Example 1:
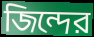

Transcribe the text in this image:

জিন্দের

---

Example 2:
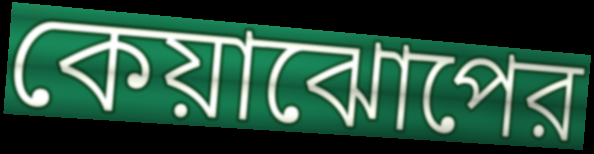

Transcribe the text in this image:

কেয়াঝোপের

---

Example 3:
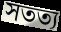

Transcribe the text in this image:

সতত্য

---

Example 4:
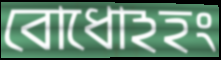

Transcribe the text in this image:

বোধোঽহং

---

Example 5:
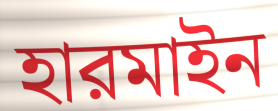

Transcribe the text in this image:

হারমাইন